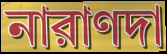
নারাণদা